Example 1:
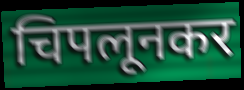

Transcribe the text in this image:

चिपलूनकर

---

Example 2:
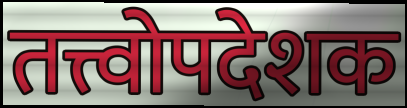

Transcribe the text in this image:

तत्त्वोपदेशक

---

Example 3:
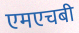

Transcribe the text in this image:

एमएचबी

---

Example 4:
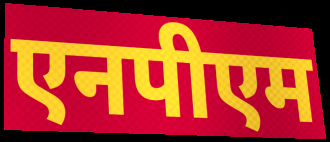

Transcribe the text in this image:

एनपीएम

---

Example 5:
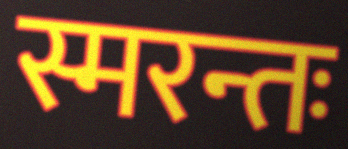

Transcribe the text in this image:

स्मरन्तः